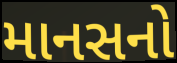
માનસનો